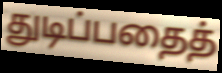
துடிப்பதைத்